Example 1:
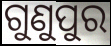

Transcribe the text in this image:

ଗୁଣୁପୁର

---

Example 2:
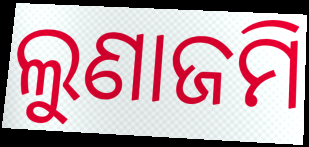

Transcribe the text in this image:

ଲୁଣାଜମି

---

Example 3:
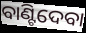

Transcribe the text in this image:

ବାଣ୍ଟିଦେବା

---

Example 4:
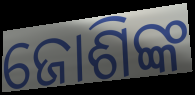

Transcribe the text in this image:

ଜୋଶିଙ୍କ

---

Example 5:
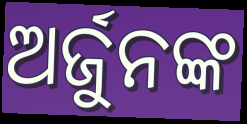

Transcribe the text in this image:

ଅର୍ଜୁନଙ୍କ